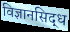
विज्ञानसिद्ध